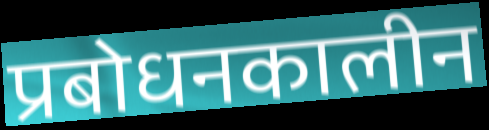
प्रबोधनकालीन